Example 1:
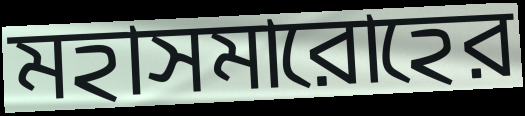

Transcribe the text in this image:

মহাসমারোহের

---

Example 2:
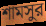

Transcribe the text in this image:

শামসুর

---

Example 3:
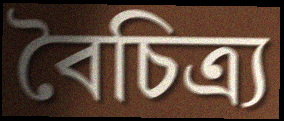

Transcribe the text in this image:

বৈচিত্র্য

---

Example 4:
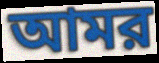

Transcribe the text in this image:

আমর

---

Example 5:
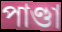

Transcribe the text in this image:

পাণ্ডা